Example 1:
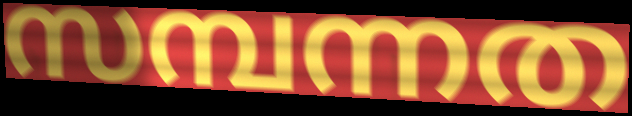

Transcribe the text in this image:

സമ്പന്നത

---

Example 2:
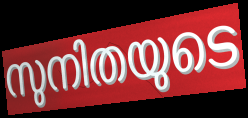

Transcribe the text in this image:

സുനിതയുടെ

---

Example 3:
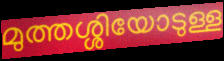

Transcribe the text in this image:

മുത്തശ്ശിയോടുള്ള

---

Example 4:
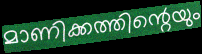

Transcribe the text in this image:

മാണിക്കത്തിന്റെയും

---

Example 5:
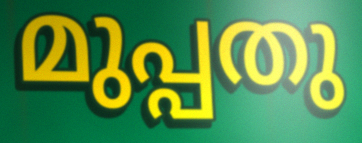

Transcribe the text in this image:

മുപ്പതു